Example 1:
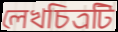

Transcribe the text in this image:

লেখচিত্রটি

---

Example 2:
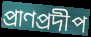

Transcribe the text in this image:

প্রাণপ্রদীপ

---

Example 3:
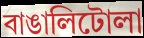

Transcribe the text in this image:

বাঙালিটোলা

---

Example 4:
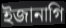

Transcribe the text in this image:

ইজানাগি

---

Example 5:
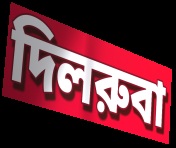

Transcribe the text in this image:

দিলরুবা